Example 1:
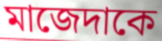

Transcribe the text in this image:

মাজেদাকে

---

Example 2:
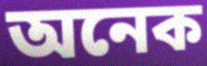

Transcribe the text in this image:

অনেক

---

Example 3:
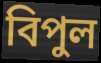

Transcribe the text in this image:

বিপুল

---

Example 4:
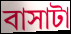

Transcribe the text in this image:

বাসাটা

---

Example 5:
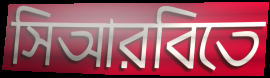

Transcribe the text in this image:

সিআরবিতে